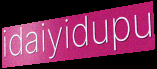
idaiyidupu